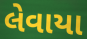
લેવાયા